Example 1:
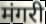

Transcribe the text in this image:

मंगरी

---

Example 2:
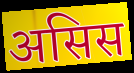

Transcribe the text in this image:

असिस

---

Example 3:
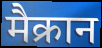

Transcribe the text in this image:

मैक्रान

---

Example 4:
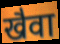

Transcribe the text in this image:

खैवा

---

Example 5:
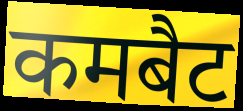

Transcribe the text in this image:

कमबैट